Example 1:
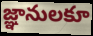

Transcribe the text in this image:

జ్ఞానులకూ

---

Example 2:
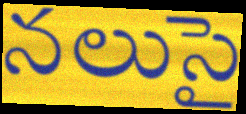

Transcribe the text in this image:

నలుసై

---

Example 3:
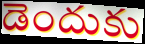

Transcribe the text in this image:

డెందుకు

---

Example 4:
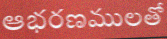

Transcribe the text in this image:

ఆభరణములతో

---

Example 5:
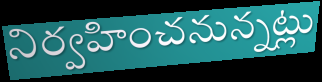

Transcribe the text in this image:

నిర్వహించనున్నట్లు